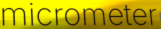
micrometer